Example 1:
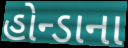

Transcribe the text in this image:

હોન્ડાના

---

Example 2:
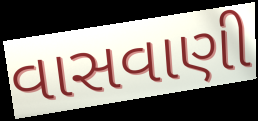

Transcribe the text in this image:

વાસવાણી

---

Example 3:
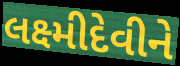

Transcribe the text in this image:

લક્ષ્મીદેવીને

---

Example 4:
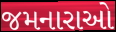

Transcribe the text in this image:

જમનારાઓ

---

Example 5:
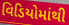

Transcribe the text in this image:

વિડિયોમાંથી